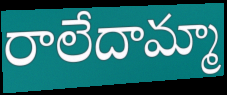
రాలేదామ్మా